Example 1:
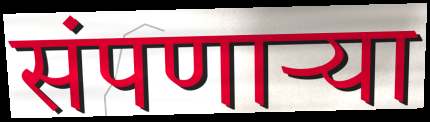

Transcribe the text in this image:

संपणाऱ्या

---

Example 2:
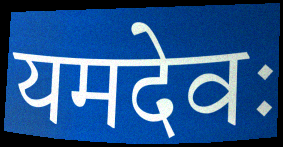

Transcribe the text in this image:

यमदेवः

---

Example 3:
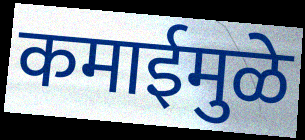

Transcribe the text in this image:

कमाईमुळे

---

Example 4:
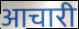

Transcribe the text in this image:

आचारी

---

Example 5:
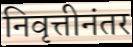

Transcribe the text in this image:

निवृत्तीनंतर